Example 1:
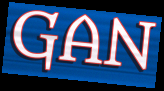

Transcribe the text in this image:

GAN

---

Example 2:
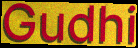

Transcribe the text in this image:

Gudhi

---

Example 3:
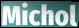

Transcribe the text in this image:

Michol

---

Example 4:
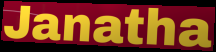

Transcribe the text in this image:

Janatha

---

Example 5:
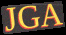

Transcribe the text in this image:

JGA